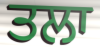
ਤਲਾ